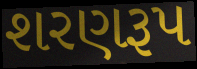
શરણરૂપ